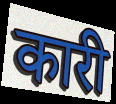
कारी